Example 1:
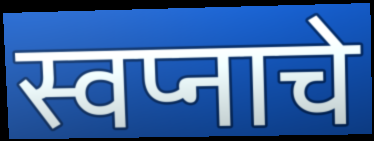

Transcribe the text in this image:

स्वप्नाचे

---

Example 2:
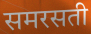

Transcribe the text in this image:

समरसती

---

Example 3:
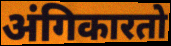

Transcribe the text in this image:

अंगिकारतो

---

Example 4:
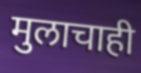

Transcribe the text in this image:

मुलाचाही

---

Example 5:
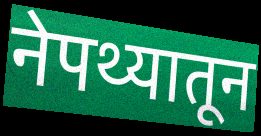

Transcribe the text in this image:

नेपथ्यातून